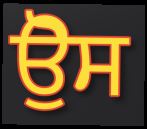
ਉੋਸ